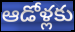
ఆడోళ్లకు